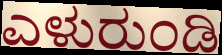
ಎಳುರುಂಡಿ